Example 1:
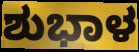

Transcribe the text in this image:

ಶುಭಾಳ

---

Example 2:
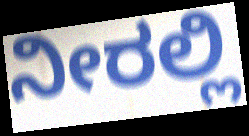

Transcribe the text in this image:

ನೀರಲ್ಲಿ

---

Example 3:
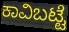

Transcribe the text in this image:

ಕಾವಿಬಟ್ಟೆ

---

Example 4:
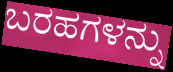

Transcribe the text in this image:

ಬರಹಗಳನ್ನು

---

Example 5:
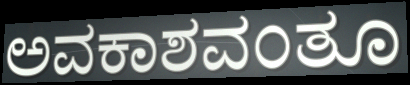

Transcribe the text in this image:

ಅವಕಾಶವಂತೂ